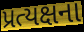
પ્રત્યક્ષના